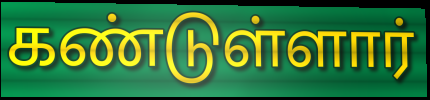
கண்டுள்ளார்